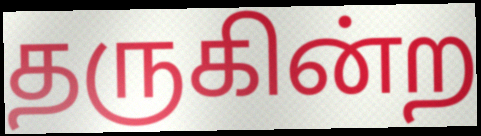
தருகின்ற